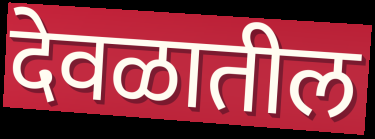
देवळातील